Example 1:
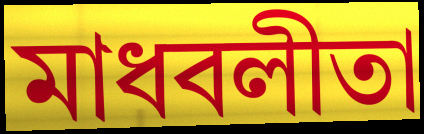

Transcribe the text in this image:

মাধবলীতা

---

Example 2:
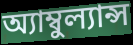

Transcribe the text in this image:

অ্যাম্বুল্যান্স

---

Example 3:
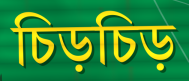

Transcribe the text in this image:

চিড়চিড়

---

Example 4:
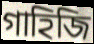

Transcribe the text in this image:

গাহিজি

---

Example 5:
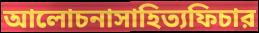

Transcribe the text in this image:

আলোচনাসাহিত্যফিচার